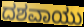
ದಶವಾಯು